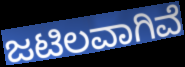
ಜಟಿಲವಾಗಿವೆ